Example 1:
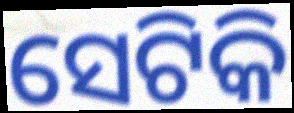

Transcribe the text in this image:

ସେଟିକି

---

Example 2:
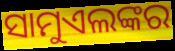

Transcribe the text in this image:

ସାମୁଏଲଙ୍କର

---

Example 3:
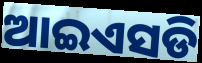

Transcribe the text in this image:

ଆଇଏସଡି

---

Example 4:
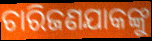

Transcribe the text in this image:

ଚାରିଜଣଯାକଙ୍କୁ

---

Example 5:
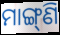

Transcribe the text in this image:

ମାଙ୍ଗ୍‌ଣି